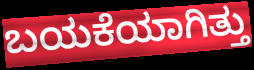
ಬಯಕೆಯಾಗಿತ್ತು